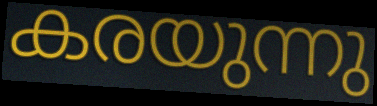
കരയുന്നു